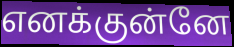
எனக்குன்னே